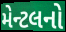
મેન્ટલનો